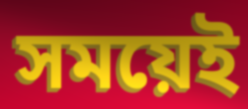
সময়েই